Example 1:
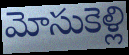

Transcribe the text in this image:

మోసుకెళ్లి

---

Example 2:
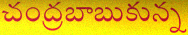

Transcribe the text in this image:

చంద్రబాబుకున్న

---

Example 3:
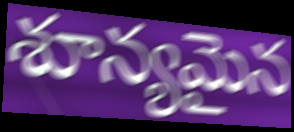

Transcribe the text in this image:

శూన్యమైన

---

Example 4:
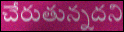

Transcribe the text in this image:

చేరుతున్నదని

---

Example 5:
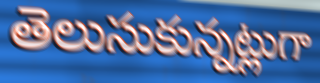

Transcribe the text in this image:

తెలుసుకున్నట్లుగా